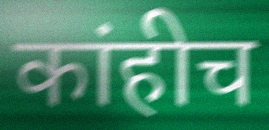
कांहीच